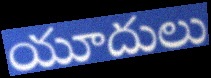
యూదులు